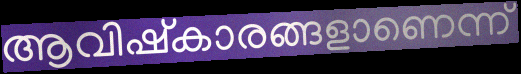
ആവിഷ്കാരങ്ങളാണെന്ന്